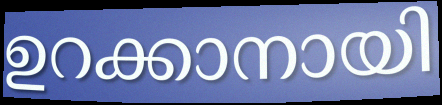
ഉറക്കാനായി